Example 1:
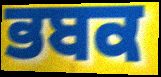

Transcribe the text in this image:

ਭਬਕ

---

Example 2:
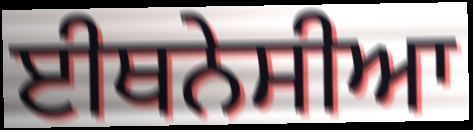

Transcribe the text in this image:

ਈਥਨੇਸੀਆ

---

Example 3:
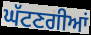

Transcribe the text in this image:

ਘੱਟਣਗੀਆਂ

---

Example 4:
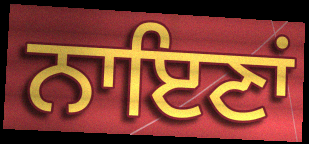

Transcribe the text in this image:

ਨਾਇਣਾਂ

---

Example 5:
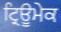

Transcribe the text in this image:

ਟ੍ਰਿਊਮੇਕ